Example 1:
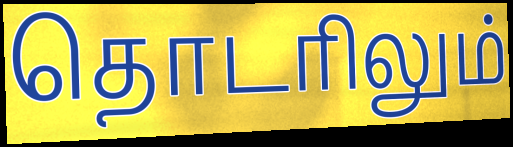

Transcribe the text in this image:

தொடரிலும்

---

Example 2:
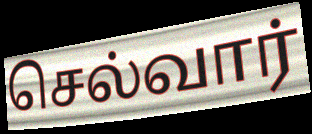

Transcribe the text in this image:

செல்வார்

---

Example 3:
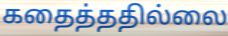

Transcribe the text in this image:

கதைத்ததில்லை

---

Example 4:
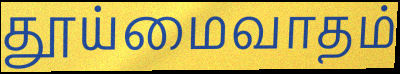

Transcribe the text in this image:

தூய்மைவாதம்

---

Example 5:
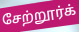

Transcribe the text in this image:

சேற்றூர்க்